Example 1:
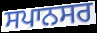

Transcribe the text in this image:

ਸਪਾਨਸਰ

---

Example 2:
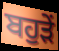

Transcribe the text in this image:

ਬਹੁੜੇਂ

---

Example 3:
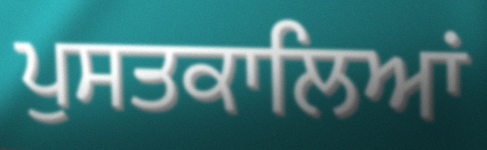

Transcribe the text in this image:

ਪੁਸਤਕਾਲਿਆਂ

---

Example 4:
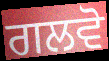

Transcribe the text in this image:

ਗਲਵੋ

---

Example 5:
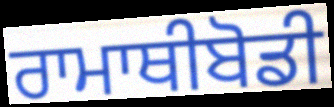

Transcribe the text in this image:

ਰਾਮਾਥੀਬੋਡੀ